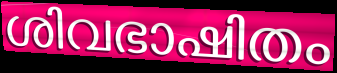
ശിവഭാഷിതം